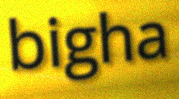
bigha